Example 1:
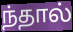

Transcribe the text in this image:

ந்தால்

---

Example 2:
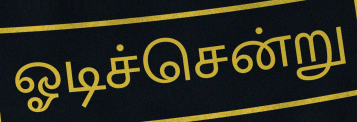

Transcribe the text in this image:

ஓடிச்சென்று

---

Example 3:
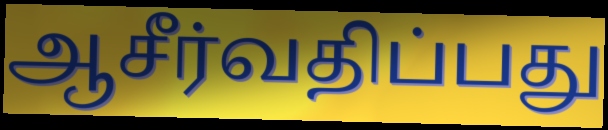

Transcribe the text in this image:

ஆசீர்வதிப்பது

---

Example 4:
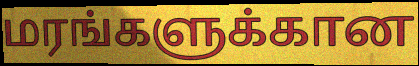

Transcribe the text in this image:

மரங்களுக்கான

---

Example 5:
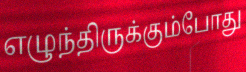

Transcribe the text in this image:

எழுந்திருக்கும்போது